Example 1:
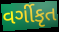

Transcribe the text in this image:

વર્ગીકૃત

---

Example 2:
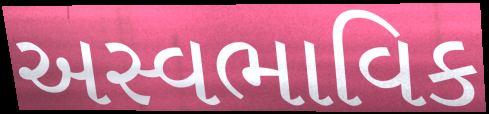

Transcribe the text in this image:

અસ્વભાવિક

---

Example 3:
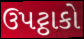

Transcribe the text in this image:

ઉપટ્ઠાકો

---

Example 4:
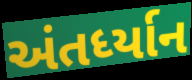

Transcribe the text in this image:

અંતર્ધ્યાન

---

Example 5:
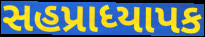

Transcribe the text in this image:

સહપ્રાધ્યાપક